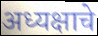
अध्यक्षाचे